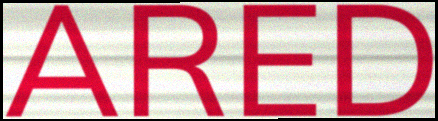
ARED